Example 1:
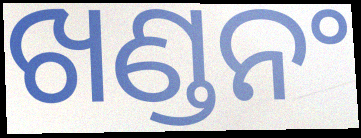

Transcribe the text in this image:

ଖଣ୍ଡନଂ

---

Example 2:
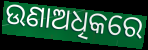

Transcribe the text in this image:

ଉଣାଅଧିକରେ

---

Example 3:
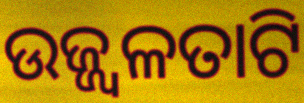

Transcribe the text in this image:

ଉଜ୍ଜ୍ୱଳତାଟି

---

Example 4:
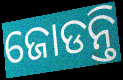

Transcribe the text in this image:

ଜୋଡନ୍ତି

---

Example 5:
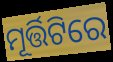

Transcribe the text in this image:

ମୂର୍ତ୍ତିଟିରେ